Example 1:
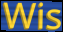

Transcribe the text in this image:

Wis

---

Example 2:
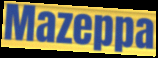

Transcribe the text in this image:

Mazeppa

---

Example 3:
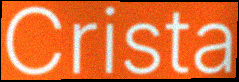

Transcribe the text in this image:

Crista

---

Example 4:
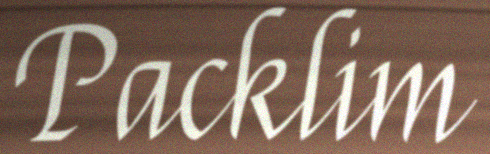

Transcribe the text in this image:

Packlim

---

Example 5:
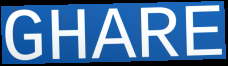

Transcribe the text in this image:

GHARE